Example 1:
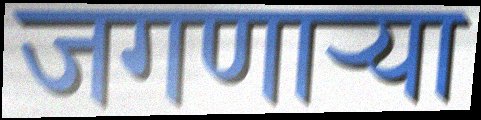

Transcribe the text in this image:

जगणार्‍या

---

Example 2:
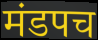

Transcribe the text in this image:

मंडपच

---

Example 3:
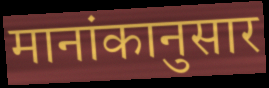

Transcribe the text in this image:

मानांकानुसार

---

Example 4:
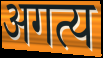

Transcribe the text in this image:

अगत्य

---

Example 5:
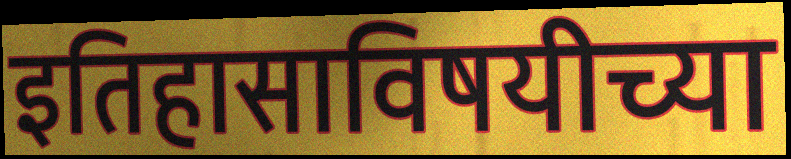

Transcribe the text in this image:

इतिहासाविषयीच्या